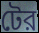
টের